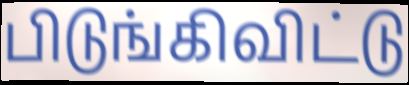
பிடுங்கிவிட்டு